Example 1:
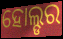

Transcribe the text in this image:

ହୋଲ୍ଡର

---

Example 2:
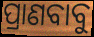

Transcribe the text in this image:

ପ୍ରାଣବାବୁ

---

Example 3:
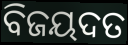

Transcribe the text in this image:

ବିଜୟଦତ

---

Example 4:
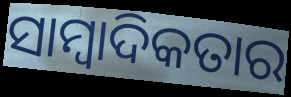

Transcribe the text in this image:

ସାମ୍ୱାଦିକତାର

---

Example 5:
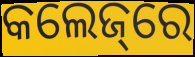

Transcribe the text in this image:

କଲେଜ୍‌ରେ